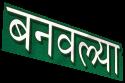
बनवल्या